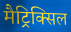
मैट्रिक्सिल